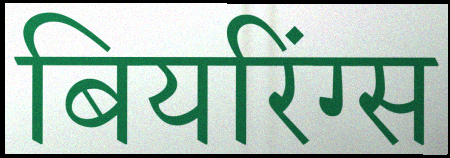
बियरिंग्स